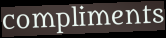
compliments